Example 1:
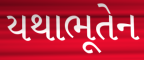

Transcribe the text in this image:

યથાભૂતેન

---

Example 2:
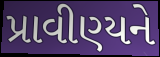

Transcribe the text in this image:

પ્રાવીણ્યને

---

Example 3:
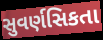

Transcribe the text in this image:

સુવર્ણસિકતા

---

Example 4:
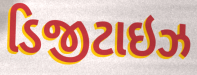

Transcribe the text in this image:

ડિજીટાઇઝ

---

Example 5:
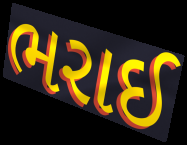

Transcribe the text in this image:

ભરાઈ